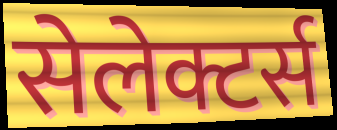
सेलेक्टर्स